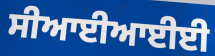
ਸੀਆਈਆਈਈ